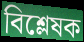
বিশ্লেষক